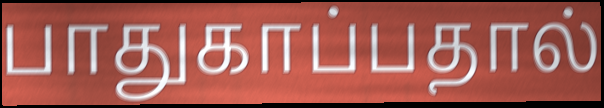
பாதுகாப்பதால்